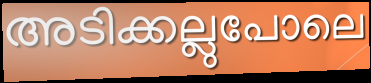
അടിക്കല്ലുപോലെ